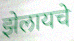
झेलायचे